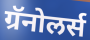
ग्रॅनोलर्स